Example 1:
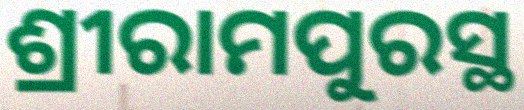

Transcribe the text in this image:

ଶ୍ରୀରାମପୁରସ୍ଥ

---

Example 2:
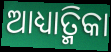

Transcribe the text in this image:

ଆଧ୍ୟାତ୍ମିକା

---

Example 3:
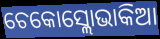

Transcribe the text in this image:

ଚେକୋସ୍ଲୋଭାକିଆ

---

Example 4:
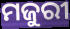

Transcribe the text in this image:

ମଜୁରୀ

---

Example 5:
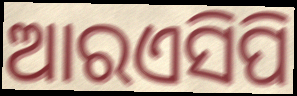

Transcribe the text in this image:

ଆରଏସିପି